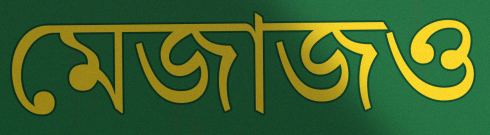
মেজাজও